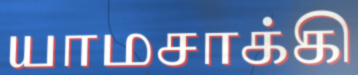
யாமசாக்கி